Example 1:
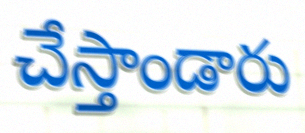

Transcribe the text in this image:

చేస్తాండారు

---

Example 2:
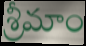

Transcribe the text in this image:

శ్రీమాం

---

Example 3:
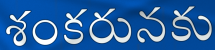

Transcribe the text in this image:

శంకరునకు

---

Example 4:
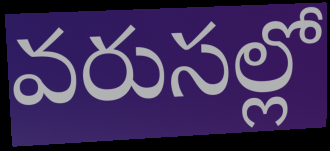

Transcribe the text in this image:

వరుసల్లో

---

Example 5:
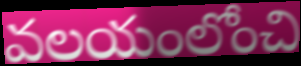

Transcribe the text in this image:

వలయంలోంచి